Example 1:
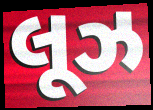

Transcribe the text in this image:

લૂઝ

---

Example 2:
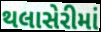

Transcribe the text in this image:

થલાસેરીમાં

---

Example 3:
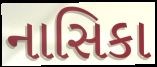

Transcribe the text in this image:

નાસિકા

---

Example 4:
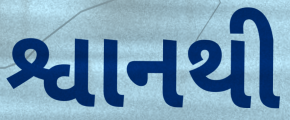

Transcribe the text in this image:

શ્વાનથી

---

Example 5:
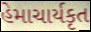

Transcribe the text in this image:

હેમાચાર્યકૃત